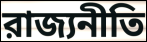
রাজ্যনীতি